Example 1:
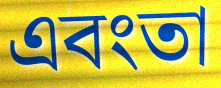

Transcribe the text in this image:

এবংতা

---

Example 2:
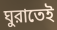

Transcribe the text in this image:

ঘুরাতেই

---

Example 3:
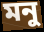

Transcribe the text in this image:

মনু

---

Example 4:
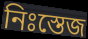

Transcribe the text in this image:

নিঃস্তেজ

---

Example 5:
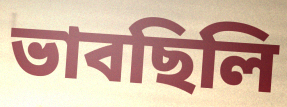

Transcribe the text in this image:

ভাবছিলি